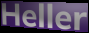
Heller